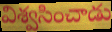
విశ్వసించాడు